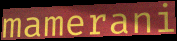
mamerani